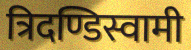
त्रिदण्डिस्वामी